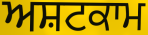
ਅਸ਼ਟਕਾਮ